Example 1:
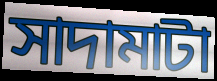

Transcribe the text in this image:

সাদামাটা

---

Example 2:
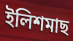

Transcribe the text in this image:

ইলিশমাছ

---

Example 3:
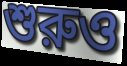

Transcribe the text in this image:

শুরুও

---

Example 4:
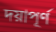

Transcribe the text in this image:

দয়াপূর্ণ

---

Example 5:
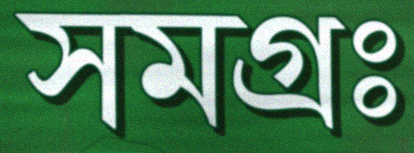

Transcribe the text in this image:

সমগ্রঃ